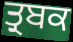
ਤ੍ਰਬਕ